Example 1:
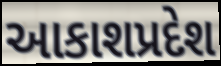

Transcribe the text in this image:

આકાશપ્રદેશ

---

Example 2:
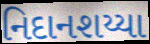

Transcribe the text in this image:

નિદાનશય્યા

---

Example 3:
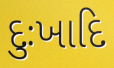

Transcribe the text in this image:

દુઃખાદિ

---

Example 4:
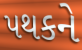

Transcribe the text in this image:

પથકને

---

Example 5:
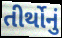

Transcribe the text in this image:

તીર્થોનું